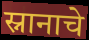
स्नानाचे